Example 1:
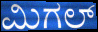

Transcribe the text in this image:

ಮಿಗಲ್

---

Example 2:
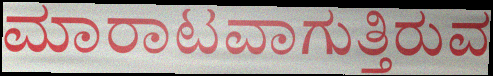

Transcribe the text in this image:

ಮಾರಾಟವಾಗುತ್ತಿರುವ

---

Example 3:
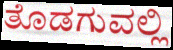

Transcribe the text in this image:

ತೊಡಗುವಲ್ಲಿ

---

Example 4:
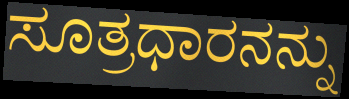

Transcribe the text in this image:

ಸೂತ್ರಧಾರನನ್ನು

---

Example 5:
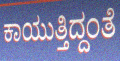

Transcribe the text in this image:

ಕಾಯುತ್ತಿದ್ದಂತೆ